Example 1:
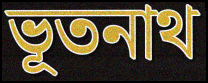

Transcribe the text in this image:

ভূতনাথ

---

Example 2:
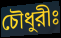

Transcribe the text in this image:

চৌধুরীঃ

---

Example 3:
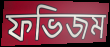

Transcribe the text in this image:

ফভিজম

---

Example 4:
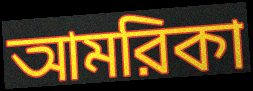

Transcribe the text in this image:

আমরিকা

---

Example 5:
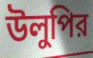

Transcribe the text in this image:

উলুপির